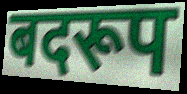
बदरूप